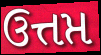
ઉત્તપ્ત